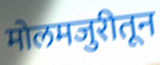
मोलमजुरीतून